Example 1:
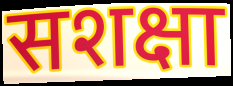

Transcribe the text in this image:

सशक्षा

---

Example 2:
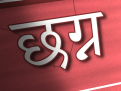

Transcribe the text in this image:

छग्न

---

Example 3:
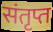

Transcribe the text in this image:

संतृप्त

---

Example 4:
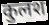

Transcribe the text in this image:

कुलश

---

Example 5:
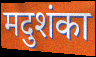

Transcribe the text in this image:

मदुशंका